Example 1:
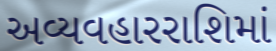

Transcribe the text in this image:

અવ્યવહારરાશિમાં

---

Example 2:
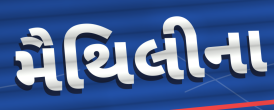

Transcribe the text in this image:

મૈથિલીના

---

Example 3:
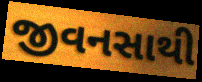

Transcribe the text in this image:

જીવનસાથી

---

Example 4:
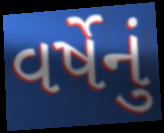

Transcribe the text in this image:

વર્ષેનું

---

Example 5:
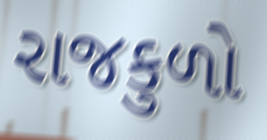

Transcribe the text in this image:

રાજકુળો